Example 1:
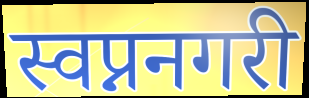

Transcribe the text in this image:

स्वप्ननगरी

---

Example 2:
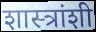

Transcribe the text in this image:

शास्त्रांशी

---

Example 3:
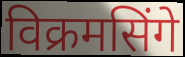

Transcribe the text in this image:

विक्रमसिंगे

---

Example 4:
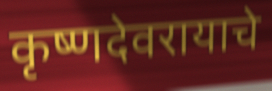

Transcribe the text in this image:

कृष्णदेवरायाचे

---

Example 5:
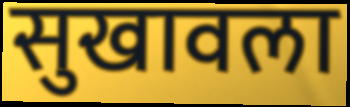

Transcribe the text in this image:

सुखावला